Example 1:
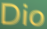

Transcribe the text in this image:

Dio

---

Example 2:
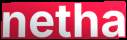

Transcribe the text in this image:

netha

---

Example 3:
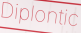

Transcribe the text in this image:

Diplontic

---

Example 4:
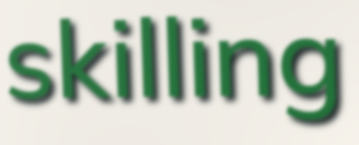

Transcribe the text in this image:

skilling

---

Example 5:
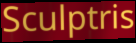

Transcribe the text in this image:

Sculptris